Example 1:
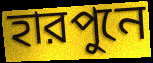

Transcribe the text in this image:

হারপুনে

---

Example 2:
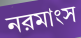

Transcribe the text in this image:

নরমাংস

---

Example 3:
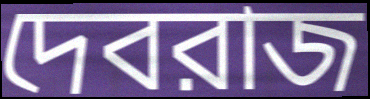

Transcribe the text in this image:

দেবরাজ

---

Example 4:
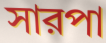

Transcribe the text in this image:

সারপা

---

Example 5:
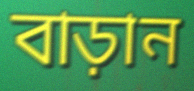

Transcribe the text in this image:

বাড়ান